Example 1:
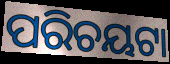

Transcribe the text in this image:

ପରିଚୟଟା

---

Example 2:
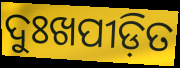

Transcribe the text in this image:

ଦୁଃଖପୀଡ଼ିତ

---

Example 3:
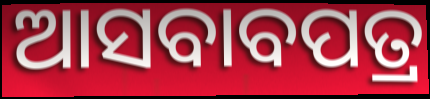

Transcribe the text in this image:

ଆସବାବପତ୍ର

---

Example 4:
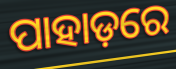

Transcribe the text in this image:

ପାହାଡ଼ରେ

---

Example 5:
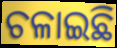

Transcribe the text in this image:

ଚଳାଇଛି